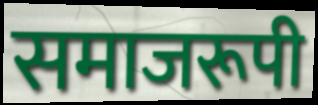
समाजरूपी